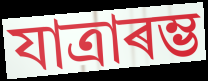
যাত্ৰাৰম্ভ